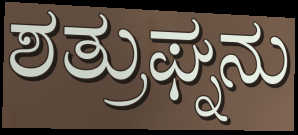
ಶತ್ರುಘ್ನನು